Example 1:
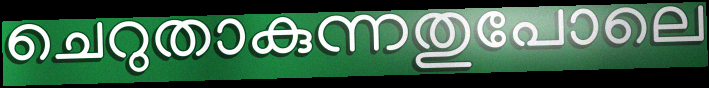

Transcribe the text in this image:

ചെറുതാകുന്നതുപോലെ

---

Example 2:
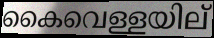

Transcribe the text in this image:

കൈവെള്ളയില്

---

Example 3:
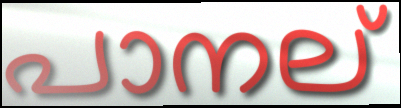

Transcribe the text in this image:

പാനല്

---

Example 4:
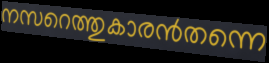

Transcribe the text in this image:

നസറെത്തുകാരൻതന്നെ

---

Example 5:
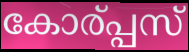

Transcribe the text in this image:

കോര്പ്പസ്